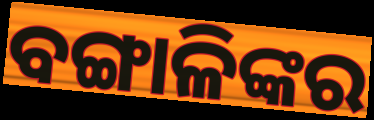
ବଙ୍ଗାଳିଙ୍କର